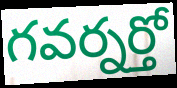
గవర్నర్తో